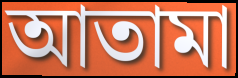
আতামা